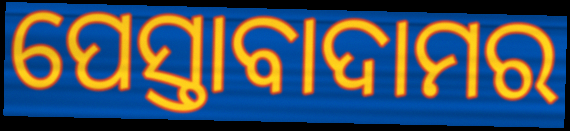
ପେସ୍ତାବାଦାମର